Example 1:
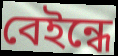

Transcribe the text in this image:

বেইন্ধে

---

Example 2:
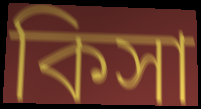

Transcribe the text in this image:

কিসা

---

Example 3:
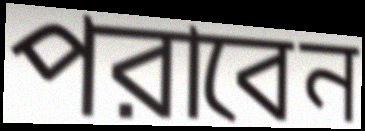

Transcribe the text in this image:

পরাবেন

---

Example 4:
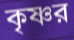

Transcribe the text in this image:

কৃষ্ণর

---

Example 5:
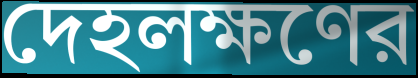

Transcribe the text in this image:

দেহলক্ষণের